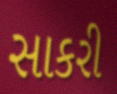
સાકરી